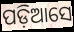
ପଡ଼ିଆସେ